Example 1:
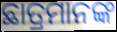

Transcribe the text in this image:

ଛାତ୍ରମାନଙ୍କ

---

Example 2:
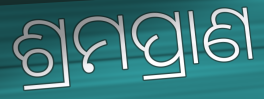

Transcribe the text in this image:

ଶ୍ରମପ୍ରାଣ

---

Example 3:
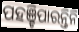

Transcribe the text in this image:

ପହଞ୍ଚିପାରନ୍ତିନି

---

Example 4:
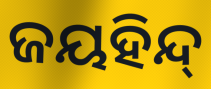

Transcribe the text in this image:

ଜୟହିନ୍ଦ୍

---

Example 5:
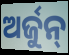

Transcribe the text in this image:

ଅର୍ଜୁନ୍